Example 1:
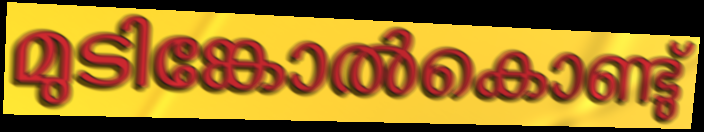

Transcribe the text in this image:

മുടിങ്കോൽകൊണ്ടു്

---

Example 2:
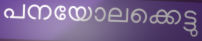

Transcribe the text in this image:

പനയോലക്കെട്ടു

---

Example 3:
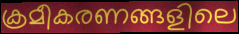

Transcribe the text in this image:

ക്രമീകരണങ്ങളിലെ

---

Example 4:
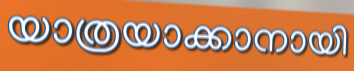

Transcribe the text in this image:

യാത്രയാക്കാനായി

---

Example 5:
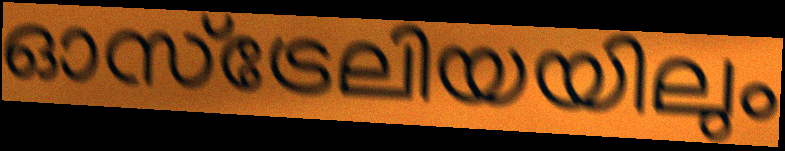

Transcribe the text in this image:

ഓസ്ട്രേലിയയിലും